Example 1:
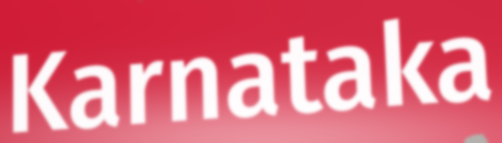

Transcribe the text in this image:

Karnataka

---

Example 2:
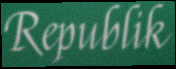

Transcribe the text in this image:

Republik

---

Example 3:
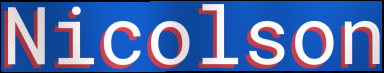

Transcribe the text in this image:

Nicolson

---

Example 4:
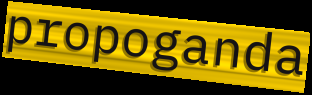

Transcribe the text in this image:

propoganda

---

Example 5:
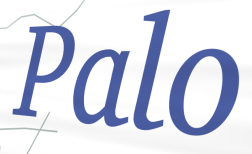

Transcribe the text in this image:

Palo